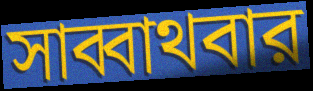
সাব্বাথবার